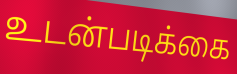
உடன்படிக்கை